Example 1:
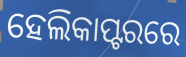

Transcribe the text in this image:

ହେଲିକାପ୍ଟରରେ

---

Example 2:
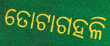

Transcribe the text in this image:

ତୋଟାଗହଳି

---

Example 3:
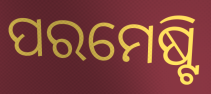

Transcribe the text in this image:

ପରମେଷ୍ଟି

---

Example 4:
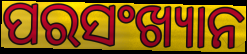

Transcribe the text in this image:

ପରସଂଖ୍ୟାନ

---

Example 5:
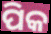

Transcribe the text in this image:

ପିକ